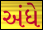
અંધે